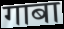
गाबा